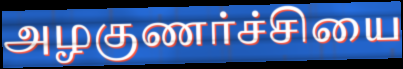
அழகுணர்ச்சியை